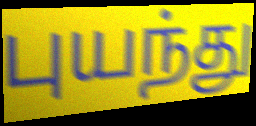
புயந்து